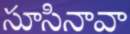
సూసినావా